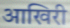
आखिरी